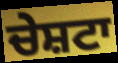
ਚੇਸ਼ਟਾ